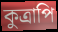
কুত্রাপি